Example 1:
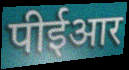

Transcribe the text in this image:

पीईआर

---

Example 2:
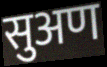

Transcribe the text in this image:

सुअण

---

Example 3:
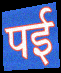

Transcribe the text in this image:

पई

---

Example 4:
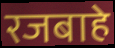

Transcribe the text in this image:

रजबाहे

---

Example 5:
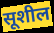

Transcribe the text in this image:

सूशील